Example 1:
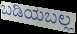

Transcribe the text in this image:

ಬಡಿಯಬಲ್ಲ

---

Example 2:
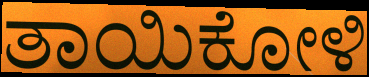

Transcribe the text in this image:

ತಾಯಿಕೋಳಿ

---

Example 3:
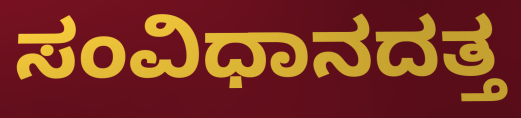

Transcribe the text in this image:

ಸಂವಿಧಾನದತ್ತ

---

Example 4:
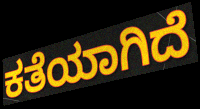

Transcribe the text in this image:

ಕತೆಯಾಗಿದೆ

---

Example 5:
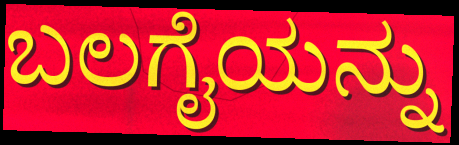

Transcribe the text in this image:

ಬಲಗೈಯನ್ನು